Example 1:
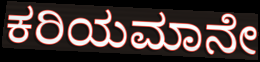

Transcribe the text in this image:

ಕರಿಯಮಾನೇ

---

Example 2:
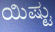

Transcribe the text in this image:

ಯಿಷ್ಟು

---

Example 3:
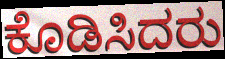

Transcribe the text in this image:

ಕೊಡಿಸಿದರು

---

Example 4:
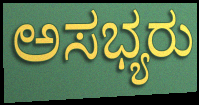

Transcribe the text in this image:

ಅಸಭ್ಯರು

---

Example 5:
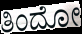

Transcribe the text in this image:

ತಿಂದೋ